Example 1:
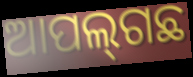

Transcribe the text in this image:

ଆପଲ୍‍ଗଛ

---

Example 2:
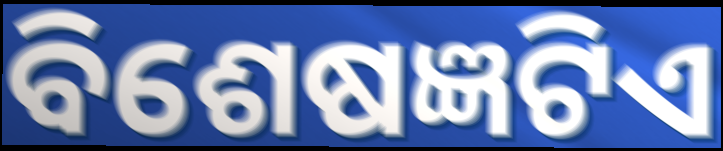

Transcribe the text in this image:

ବିଶେଷଜ୍ଞଟିଏ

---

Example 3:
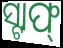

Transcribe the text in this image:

ସ୍ଟାଫ୍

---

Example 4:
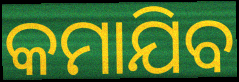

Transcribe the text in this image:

କମାଯିବ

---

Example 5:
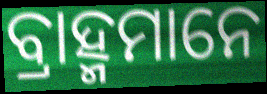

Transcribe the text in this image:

ବ୍ରାହ୍ମମାନେ